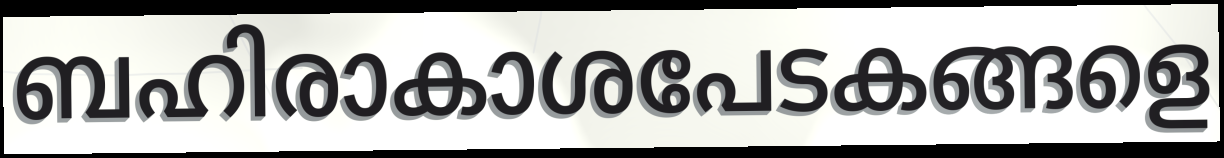
ബഹിരാകാശപേടകങ്ങളെ